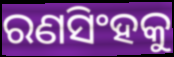
ରଣସିଂହକୁ